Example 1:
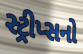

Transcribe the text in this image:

સ્ટ્રીપ્સનો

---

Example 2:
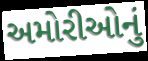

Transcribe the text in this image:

અમોરીઓનું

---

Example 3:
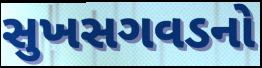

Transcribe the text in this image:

સુખસગવડનો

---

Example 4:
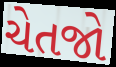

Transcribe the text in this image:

ચેતજો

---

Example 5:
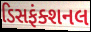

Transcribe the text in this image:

ડિસફંક્શનલ